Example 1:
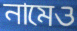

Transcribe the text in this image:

নামেও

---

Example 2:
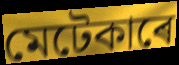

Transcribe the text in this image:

মেটেকাৰে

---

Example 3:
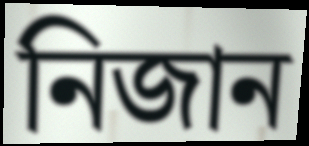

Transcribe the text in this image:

নিজান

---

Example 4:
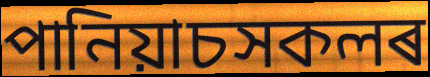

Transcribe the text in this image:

পানিয়াচসকলৰ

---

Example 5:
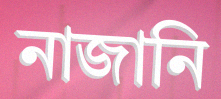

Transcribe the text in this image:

নাজানি